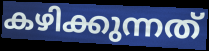
കഴിക്കുന്നത്